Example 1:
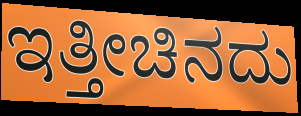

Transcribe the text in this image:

ಇತ್ತೀಚಿನದು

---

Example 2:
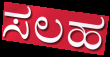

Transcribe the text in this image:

ಸಲಹ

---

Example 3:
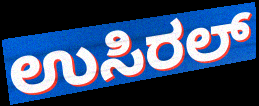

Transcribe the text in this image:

ಉಸಿರಲ್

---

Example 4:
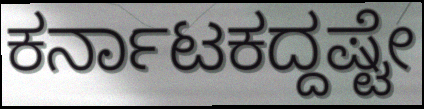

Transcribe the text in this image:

ಕರ್ನಾಟಕದ್ದಷ್ಟೇ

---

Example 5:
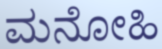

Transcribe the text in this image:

ಮನೋಹಿ